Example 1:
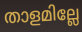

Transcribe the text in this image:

താളമില്ലേ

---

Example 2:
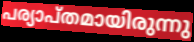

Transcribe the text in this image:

പര്യാപ്തമായിരുന്നു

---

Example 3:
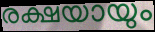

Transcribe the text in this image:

രക്ഷയായും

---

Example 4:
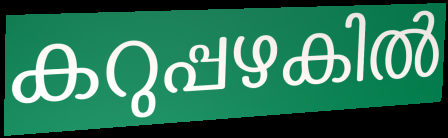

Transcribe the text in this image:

കറുപ്പഴകിൽ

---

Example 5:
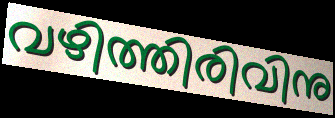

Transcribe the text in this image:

വഴിത്തിരിവിനു